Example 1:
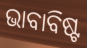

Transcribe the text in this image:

ଭାବାବିଷ୍ଟ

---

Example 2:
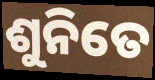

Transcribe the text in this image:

ଶୁନିତେ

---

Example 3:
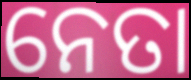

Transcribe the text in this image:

ନେତା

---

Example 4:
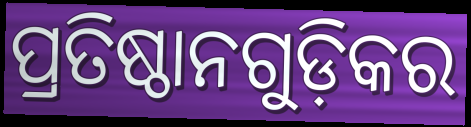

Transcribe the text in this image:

ପ୍ରତିଷ୍ଠାନଗୁଡ଼ିକର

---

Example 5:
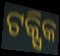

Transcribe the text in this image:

ଟକ୍ସିକ